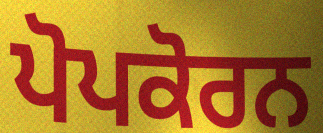
ਪੋਪਕੋਰਨ